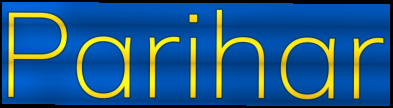
Parihar